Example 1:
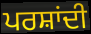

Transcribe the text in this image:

ਪਰਸ਼ਾਂਦੀ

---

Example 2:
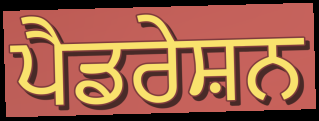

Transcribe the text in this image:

ਪੈਡਰੇਸ਼ਨ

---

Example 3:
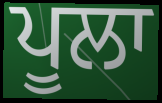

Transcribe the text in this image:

ਪੂਲਾ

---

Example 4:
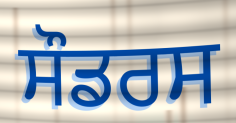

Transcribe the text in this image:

ਸੌਡਰਸ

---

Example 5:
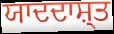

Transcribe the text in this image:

ਯਾਦਦਾਸ਼੍ਤ